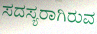
ಸದಸ್ಯರಾಗಿರುವ